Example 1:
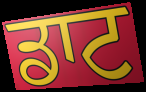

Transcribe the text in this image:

ਡਾਟ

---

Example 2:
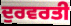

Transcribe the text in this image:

ਦੁਰਵਰਤੀ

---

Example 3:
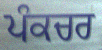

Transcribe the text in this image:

ਪੰਕਚਰ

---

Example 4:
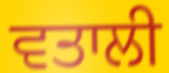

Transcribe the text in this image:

ਵਤਾਲੀ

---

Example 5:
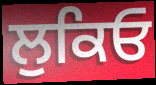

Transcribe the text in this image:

ਲੁਕਿਓ